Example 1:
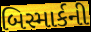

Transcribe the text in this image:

બિસ્માર્કની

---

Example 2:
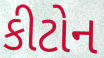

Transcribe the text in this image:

કીટોન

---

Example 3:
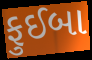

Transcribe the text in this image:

ફુઈબા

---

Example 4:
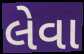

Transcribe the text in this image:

લેવા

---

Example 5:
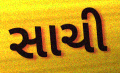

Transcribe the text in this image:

સાચી